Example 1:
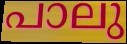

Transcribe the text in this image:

പാലു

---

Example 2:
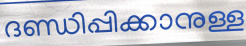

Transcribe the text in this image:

ദണ്ഡിപ്പിക്കാനുള്ള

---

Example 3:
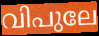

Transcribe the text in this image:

വിപുലേ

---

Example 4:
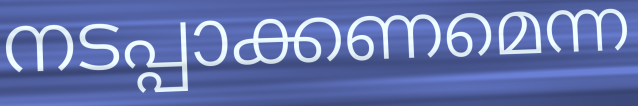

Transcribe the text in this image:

നടപ്പാക്കണമെന്ന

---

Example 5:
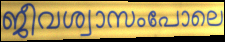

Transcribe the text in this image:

ജീവശ്വാസംപോലെ